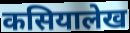
कसियालेख